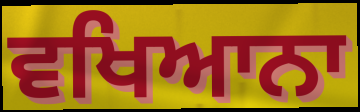
ਵਖਿਆਨਾ